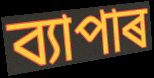
ব্যাপাৰ